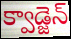
క్వాడ్జెన్